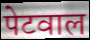
पेटवाल